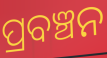
ପ୍ରବଞ୍ଚନ